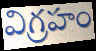
విగ్రహం